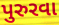
પુરુરવા